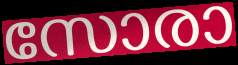
സോരാ